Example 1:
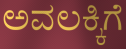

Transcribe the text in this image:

ಅವಲಕ್ಕಿಗೆ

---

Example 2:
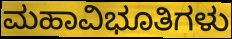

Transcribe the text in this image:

ಮಹಾವಿಭೂತಿಗಳು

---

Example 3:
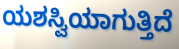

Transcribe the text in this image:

ಯಶಸ್ವಿಯಾಗುತ್ತಿದೆ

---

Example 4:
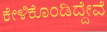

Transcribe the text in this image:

ಕೇಳಿಕೊಂಡಿದ್ದೇವೆ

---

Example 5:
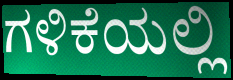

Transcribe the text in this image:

ಗಳಿಕೆಯಲ್ಲಿ